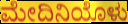
ಮೇದಿನಿಯೊಳು